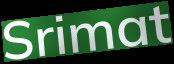
Srimat